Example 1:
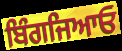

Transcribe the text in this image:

ਬਿੰਗਜਿਆਓ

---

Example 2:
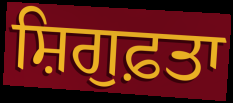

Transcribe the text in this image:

ਸ਼ਿਗੁਫ਼ਤਾ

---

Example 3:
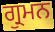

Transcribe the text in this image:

ਗ੍ਰੁਮਨ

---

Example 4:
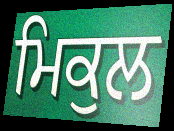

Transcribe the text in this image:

ਮਿਕੁਲ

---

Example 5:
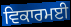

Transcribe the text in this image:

ਵਿਕਾਰਮਈ